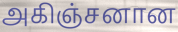
அகிஞ்சனான